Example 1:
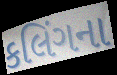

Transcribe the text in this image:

કલિંગના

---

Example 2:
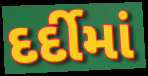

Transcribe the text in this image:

દર્દીમાં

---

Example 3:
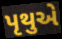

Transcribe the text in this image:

પૃથુએ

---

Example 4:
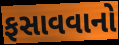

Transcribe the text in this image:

ફસાવવાનો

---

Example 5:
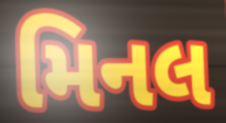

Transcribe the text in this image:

મિનલ